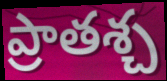
ప్రాతశ్చ